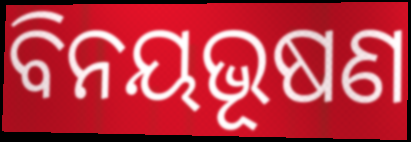
ବିନୟଭୂଷଣ